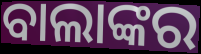
ବାଲାଙ୍କର